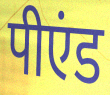
पीएंड